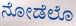
ನೋಡೆಲೊ